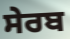
ਸੇਰਬ